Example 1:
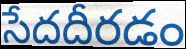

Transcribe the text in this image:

సేదదీరడం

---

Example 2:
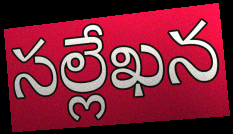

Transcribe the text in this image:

సల్లేఖన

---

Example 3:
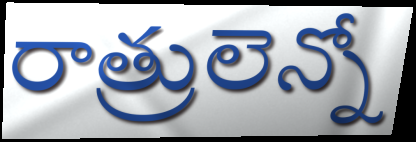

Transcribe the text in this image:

రాత్రులెన్నో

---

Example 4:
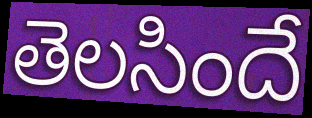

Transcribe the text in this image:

తెలసిందే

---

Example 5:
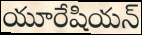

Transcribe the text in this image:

యూరేషియన్